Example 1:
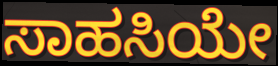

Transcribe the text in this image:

ಸಾಹಸಿಯೇ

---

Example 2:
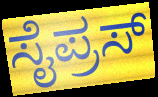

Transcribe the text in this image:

ಸೈಪ್ರಸ್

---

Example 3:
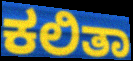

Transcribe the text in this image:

ಕಲಿತಾ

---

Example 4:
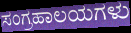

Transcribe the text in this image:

ಸಂಗ್ರಹಾಲಯಗಳು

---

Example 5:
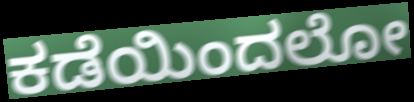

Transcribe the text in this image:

ಕಡೆಯಿಂದಲೋ